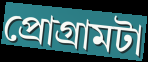
প্রোগ্রামটা